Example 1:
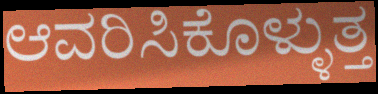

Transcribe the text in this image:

ಆವರಿಸಿಕೊಳ್ಳುತ್ತ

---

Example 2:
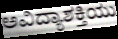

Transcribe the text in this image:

ಅವಿದ್ಯಾಶಕ್ತಿಯು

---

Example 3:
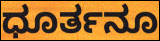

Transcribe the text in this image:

ಧೂರ್ತನೂ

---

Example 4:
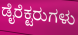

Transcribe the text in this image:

ಡೈರೆಕ್ಟರುಗಳು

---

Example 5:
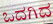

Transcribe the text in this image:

ಒದಗಿದ